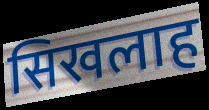
सिखलाह